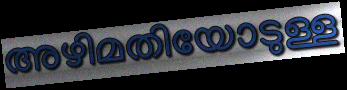
അഴിമതിയോടുള്ള